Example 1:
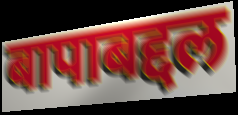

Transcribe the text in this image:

बापाबद्दल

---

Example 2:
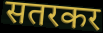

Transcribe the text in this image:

सतरकर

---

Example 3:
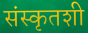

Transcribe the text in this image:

संस्कृतशी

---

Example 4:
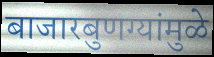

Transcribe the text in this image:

बाजारबुणग्यांमुळे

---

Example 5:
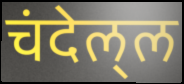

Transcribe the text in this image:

चंदेल्ल